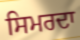
ਸਿਮਰਦਾ